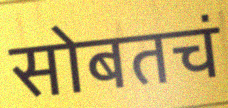
सोबतचं